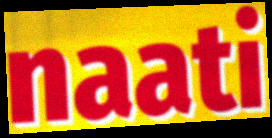
naati